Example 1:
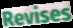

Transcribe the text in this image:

Revises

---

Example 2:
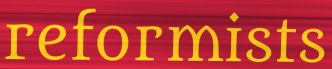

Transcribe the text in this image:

reformists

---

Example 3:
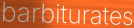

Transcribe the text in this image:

barbiturates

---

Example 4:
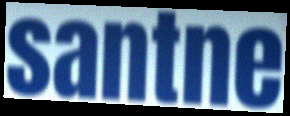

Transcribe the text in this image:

santne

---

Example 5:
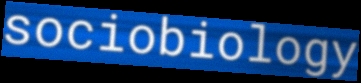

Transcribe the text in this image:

sociobiology